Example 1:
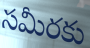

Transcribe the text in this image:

సమీరకు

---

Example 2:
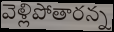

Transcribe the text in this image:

వెళ్లిపోతారన్న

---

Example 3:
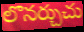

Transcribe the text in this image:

లొనర్చుచు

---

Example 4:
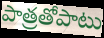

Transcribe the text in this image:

పాత్రతోపాటు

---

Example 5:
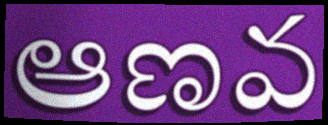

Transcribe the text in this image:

ఆణవ